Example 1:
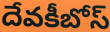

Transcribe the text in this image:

దేవకీబోస్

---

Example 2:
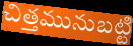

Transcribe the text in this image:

చిత్తమునుబట్టి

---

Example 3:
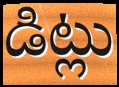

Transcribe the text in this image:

డిట్లు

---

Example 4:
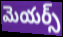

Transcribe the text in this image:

మెయర్స్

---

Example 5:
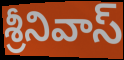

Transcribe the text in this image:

శ్రీనివాస్